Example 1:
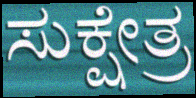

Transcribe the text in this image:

ಸುಕ್ಷೇತ್ರ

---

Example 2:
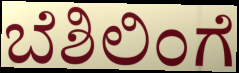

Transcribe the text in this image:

ಬೆಶಿಲಿಂಗೆ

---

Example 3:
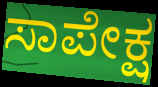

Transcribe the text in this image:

ಸಾಪೇಕ್ಷ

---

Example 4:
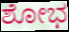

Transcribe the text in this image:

ಶೋಭ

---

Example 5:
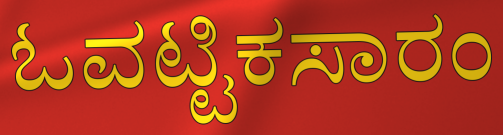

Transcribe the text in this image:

ಓವಟ್ಟಿಕಸಾರಂ